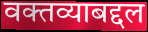
वक्तव्याबद्दल